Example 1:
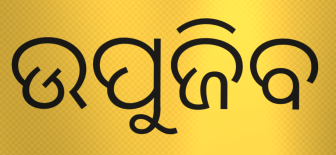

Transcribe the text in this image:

ଉପୁଜିବ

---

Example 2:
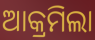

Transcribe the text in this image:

ଆକ୍ରମିଲା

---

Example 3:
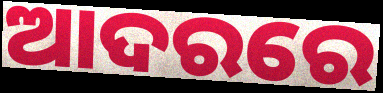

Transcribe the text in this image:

ଆଦରରେ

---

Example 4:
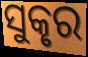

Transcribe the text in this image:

ସୁକୃର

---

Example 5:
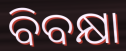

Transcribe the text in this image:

ବିବକ୍ଷା